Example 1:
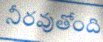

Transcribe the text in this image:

నీరవుతోంది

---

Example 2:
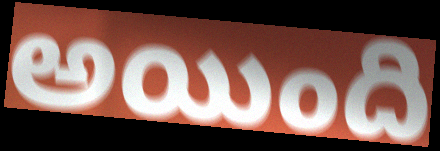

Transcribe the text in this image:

అయింది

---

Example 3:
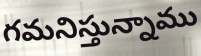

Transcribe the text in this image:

గమనిస్తున్నాము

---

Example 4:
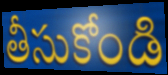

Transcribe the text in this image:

తీసుకోండి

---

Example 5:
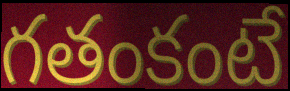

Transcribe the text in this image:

గతంకంటే